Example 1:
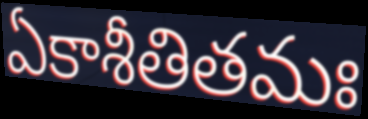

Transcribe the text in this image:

ఏకాశీతితమః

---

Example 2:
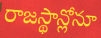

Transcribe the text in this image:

రాజస్థాన్లోనూ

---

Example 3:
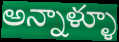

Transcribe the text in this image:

అన్నాళ్ళూ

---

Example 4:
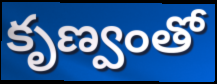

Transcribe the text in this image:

కృణ్వంతో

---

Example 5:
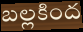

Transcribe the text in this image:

బల్లకింద